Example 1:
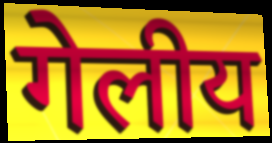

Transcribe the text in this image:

गेलीय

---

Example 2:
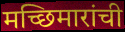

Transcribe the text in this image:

मच्छिमारांची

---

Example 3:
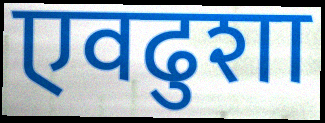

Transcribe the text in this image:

एवढुशा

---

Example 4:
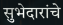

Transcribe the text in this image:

सुभेदारांचे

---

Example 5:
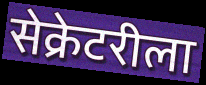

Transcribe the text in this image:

सेक्रेटरीला